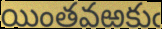
యింతవఱకుఁ